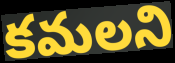
కమలని